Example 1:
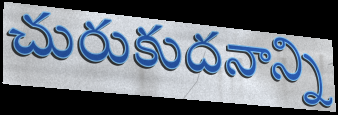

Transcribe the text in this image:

చురుకుదనాన్ని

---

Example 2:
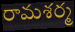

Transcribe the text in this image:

రామశర్మ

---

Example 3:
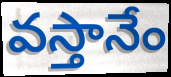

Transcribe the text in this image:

వస్తానేం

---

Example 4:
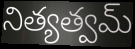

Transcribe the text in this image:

నిత్యత్వమ్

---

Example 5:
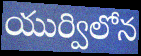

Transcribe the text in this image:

యుర్విలోన